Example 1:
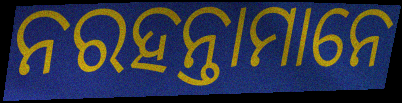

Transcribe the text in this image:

ନରହନ୍ତାମାନେ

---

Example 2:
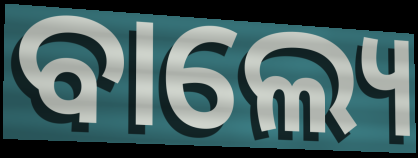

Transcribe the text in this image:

ବାଲ୍ୟେ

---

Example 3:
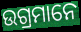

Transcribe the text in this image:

ଉଗ୍ରମାନେ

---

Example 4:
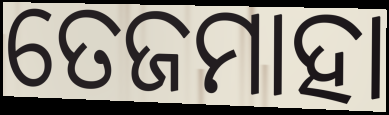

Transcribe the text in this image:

ତେଜମାହା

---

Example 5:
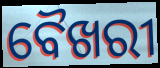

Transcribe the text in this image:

ବୈଖରୀ